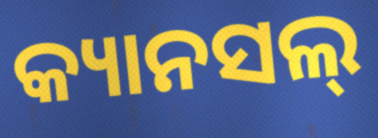
କ୍ୟାନସଲ୍